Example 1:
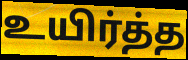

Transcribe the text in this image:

உயிர்த்த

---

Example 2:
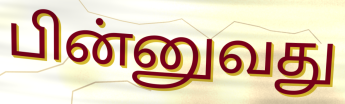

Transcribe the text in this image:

பின்னுவது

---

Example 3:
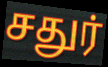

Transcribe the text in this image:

சதுர்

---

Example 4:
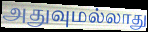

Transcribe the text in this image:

அதுவுமல்லாது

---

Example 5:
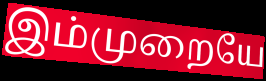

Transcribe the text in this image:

இம்முறையே